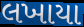
લખાયા